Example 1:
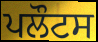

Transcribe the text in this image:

ਪਲੌਟਸ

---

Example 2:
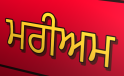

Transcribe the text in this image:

ਮਰੀਅਮ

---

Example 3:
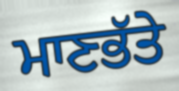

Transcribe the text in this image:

ਮਾਣਭੱਤੇ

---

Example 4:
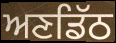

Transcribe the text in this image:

ਅਣਡਿੱਠ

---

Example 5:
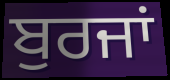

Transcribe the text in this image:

ਬੁਰਜਾਂ